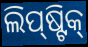
ଲିପ୍‌ଷ୍ଟିକ୍